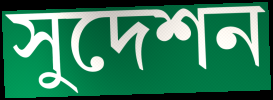
সুদেশন